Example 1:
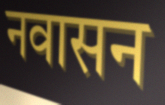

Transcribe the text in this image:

नवासन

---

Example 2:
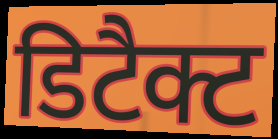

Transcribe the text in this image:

डिटैक्ट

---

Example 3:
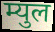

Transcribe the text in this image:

म्युल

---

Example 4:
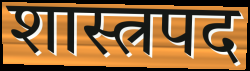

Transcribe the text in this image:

शास्त्रपद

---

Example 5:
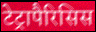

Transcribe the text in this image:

टेट्रापैरिसिस